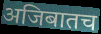
अजिबातच